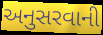
અનુસરવાની